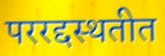
पररद्दस्थतीत